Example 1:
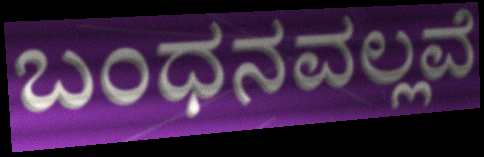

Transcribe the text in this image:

ಬಂಧನವಲ್ಲವೆ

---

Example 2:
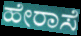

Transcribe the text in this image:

ಹೇರಾಸೆ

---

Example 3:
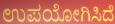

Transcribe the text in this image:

ಉಪಯೋಗಿಸಿದೆ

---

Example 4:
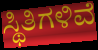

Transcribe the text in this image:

ಸ್ಥಿತಿಗಳಿವೆ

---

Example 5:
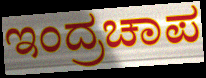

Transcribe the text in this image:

ಇಂದ್ರಚಾಪ